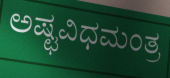
ಅಷ್ಟವಿಧಮಂತ್ರ